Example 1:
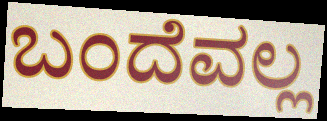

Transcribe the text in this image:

ಬಂದೆವಲ್ಲ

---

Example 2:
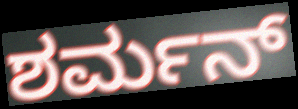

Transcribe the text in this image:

ಶರ್ಮನ್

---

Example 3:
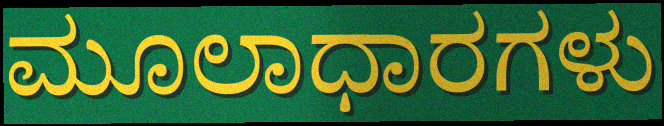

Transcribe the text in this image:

ಮೂಲಾಧಾರಗಳು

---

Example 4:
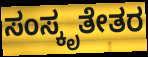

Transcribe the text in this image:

ಸಂಸ್ಕೃತೇತರ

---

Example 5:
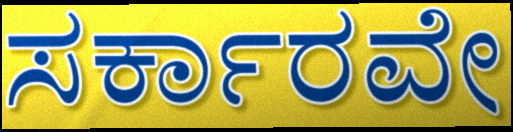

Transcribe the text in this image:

ಸರ್ಕಾರವೇ